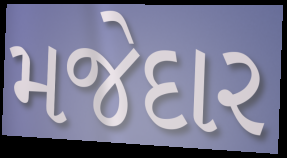
મજેદાર